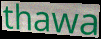
thawa